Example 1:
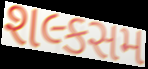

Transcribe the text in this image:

શલ્કસમ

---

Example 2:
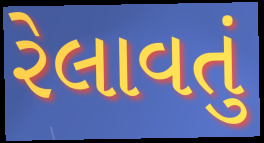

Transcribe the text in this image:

રેલાવતું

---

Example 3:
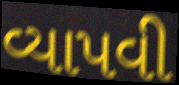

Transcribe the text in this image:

વ્યાપવી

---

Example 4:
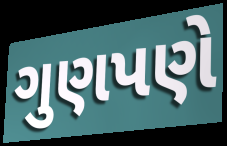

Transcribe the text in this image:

ગુણપણે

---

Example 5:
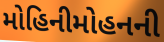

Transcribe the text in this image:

મોહિનીમોહનની